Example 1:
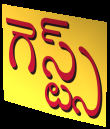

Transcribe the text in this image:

గెస్ట్స్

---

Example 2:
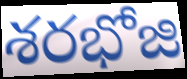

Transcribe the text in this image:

శరభోజి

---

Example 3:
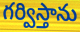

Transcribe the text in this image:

గర్విస్తాను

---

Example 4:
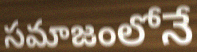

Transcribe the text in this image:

సమాజంలోనే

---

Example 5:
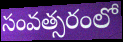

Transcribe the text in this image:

సంవత్సరంలో